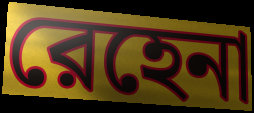
রেহেনা